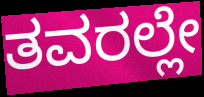
ತವರಲ್ಲೇ